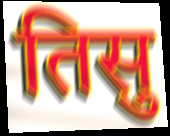
तिसु